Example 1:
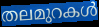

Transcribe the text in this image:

തലമുറകൾ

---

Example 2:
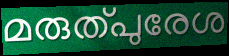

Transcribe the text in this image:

മരുത്പുരേശ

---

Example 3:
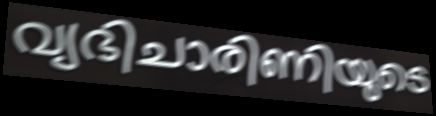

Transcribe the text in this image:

വ്യഭിചാരിണിയുടെ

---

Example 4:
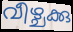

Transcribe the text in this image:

വീഴ്ചക്കു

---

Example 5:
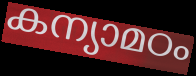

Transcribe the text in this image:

കന്യാമഠം